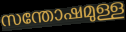
സന്തോഷമുള്ള